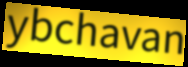
ybchavan